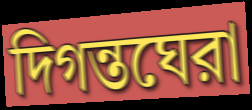
দিগন্তঘেরা